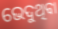
ଭେଦୁଥିବା